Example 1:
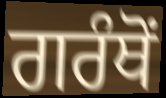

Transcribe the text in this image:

ਗਰੰਥੋਂ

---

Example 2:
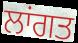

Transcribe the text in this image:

ਲਾਂਗਤ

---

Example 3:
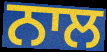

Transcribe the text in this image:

ਨਾਲ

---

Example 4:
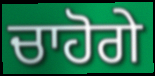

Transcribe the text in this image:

ਚਾਹੋਗੇ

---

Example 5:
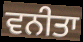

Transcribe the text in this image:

ਵਨੀਤਾ